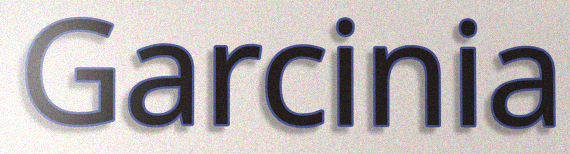
Garcinia